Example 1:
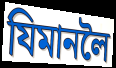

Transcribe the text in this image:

যিমানলৈ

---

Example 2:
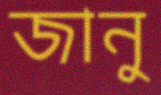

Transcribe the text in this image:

জানু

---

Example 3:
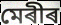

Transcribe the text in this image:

মেৰীৰ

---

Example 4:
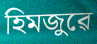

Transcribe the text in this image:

হিমজুৱে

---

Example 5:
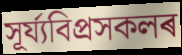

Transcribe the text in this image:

সূৰ্য্যবিপ্ৰসকলৰ